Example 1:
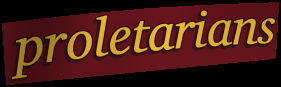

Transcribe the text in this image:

proletarians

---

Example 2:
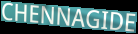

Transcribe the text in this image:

CHENNAGIDE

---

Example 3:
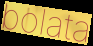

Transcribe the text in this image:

bolata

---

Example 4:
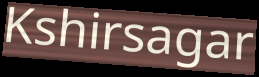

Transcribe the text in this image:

Kshirsagar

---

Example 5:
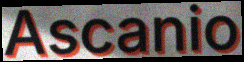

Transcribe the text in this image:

Ascanio